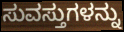
ಸುವಸ್ತುಗಳನ್ನು